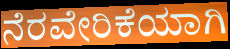
ನೆರವೇರಿಕೆಯಾಗಿ